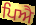
ਪਿਐ